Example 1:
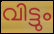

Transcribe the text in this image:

വിട്ടും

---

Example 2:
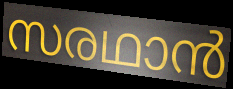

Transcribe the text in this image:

സരഥാൻ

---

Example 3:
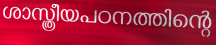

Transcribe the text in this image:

ശാസ്ത്രീയപഠനത്തിന്റെ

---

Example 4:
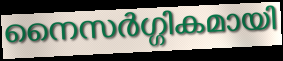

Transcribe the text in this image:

നൈസർഗ്ഗികമായി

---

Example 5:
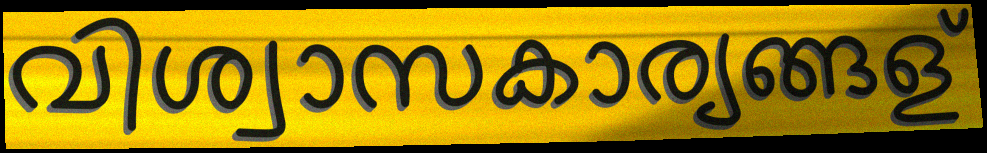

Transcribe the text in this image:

വിശ്വാസകാര്യങ്ങള്